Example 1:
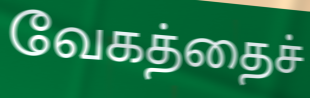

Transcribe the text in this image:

வேகத்தைச்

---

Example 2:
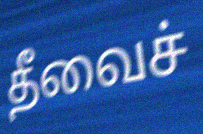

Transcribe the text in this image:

தீவைச்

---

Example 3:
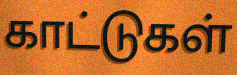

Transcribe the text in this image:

காட்டுகள்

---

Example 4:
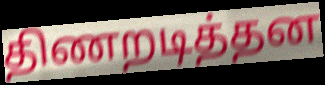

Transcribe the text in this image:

திணறடித்தன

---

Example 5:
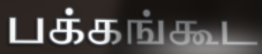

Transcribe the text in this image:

பக்கங்கூட